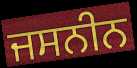
ਜਸਨੀਨ